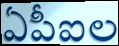
ఏపీఐల